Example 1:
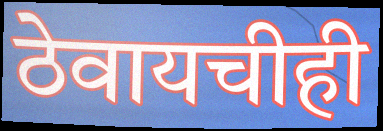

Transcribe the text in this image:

ठेवायचीही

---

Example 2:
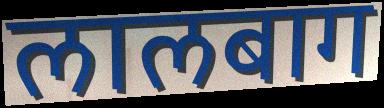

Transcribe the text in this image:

लालबाग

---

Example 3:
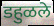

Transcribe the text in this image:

डहुळले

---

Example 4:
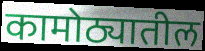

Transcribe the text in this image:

कामोठ्यातील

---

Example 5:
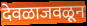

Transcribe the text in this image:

देवळाजवळून